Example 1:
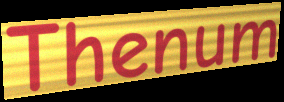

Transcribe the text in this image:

Thenum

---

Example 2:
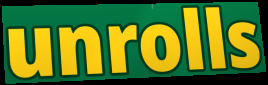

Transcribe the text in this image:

unrolls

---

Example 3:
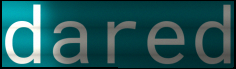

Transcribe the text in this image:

dared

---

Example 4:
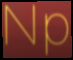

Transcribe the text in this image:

Np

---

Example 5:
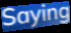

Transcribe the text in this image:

Saying